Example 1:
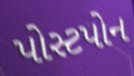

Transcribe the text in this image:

પોસ્ટપોન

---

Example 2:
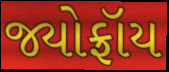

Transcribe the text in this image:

જ્યોફ્રૉય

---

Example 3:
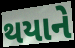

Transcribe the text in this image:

થયાને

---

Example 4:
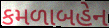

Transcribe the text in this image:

કમળાબહેન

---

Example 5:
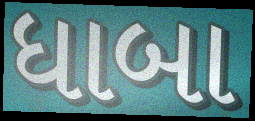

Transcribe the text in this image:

ધાબા